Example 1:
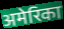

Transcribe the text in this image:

अमेरिका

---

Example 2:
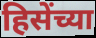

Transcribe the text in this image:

हिसेंच्या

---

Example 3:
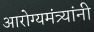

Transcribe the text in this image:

आरोग्यमंत्र्यांनी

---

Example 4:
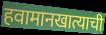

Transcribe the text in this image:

हवामानखात्याची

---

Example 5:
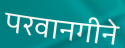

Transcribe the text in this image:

परवानगीने